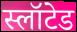
स्लॉटेड